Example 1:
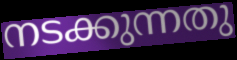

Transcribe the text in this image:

നടക്കുന്നതു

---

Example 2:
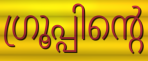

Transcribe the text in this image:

ഗ്രൂപ്പിന്റെ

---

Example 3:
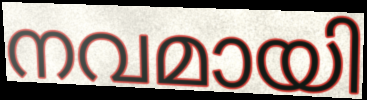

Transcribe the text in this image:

നവമായി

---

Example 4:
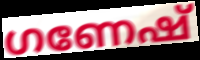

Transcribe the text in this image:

ഗണേഷ്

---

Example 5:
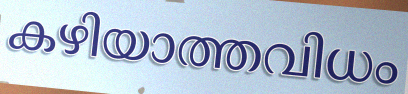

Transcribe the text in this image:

കഴിയാത്തവിധം